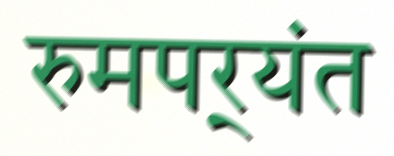
रुमपर्यंत